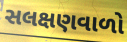
સલક્ષણવાળો